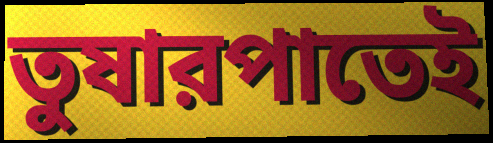
তুষারপাতেই